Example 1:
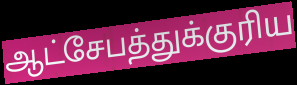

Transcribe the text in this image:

ஆட்சேபத்துக்குரிய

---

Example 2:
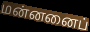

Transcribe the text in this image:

மன்னனைப்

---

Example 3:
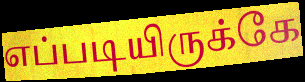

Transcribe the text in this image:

எப்படியிருக்கே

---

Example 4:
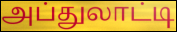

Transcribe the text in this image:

அப்துலாட்டி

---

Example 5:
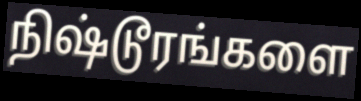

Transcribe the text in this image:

நிஷ்டூரங்களை